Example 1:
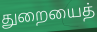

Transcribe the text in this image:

துறையைத்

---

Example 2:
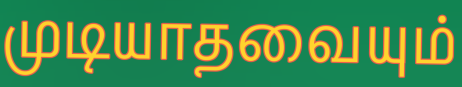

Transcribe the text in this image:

முடியாதவையும்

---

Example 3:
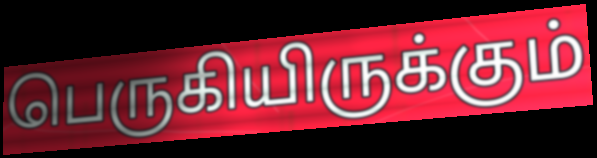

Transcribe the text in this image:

பெருகியிருக்கும்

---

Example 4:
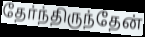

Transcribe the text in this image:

தேர்ந்திருந்தேன்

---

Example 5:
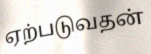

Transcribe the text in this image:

ஏற்படுவதன்